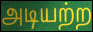
அடியற்ற